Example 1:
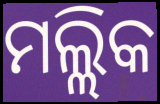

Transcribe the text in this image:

ମଲ୍ଲିକ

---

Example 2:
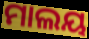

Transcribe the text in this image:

ମାଲୟ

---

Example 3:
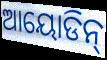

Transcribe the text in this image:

ଆୟୋଡିନ୍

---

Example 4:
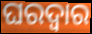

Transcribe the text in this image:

ଘରଦ୍ବାର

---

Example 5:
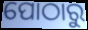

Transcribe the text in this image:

ପୋଠାରୁ